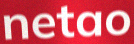
netao